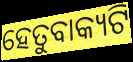
ହେତୁବାକ୍ୟଟି